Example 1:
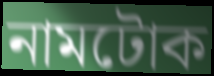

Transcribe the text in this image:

নামটোক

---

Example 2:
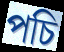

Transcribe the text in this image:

পচি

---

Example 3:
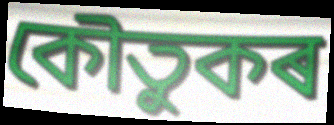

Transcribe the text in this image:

কৌতুকৰ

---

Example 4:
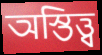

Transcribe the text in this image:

অস্তিত্ত্ব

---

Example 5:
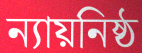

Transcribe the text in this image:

ন্যায়নিষ্ঠ